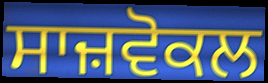
ਸਾਜ਼ਵੋਕਲ